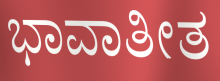
ಭಾವಾತೀತ